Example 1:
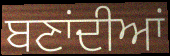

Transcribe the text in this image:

ਬਣਾਂਦੀਆਂ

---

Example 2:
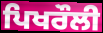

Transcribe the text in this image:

ਪਿਖਰੌਲੀ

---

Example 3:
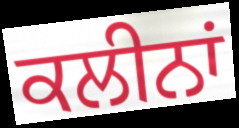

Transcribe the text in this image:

ਕਲੀਨਾਂ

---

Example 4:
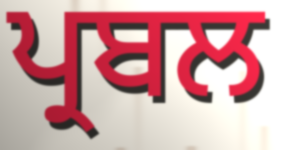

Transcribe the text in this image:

ਪ੍ਰਬਲ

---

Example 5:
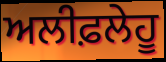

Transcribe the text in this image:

ਅਲੀਫ਼ਲੇਹੂ